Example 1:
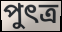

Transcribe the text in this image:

পুৎত্র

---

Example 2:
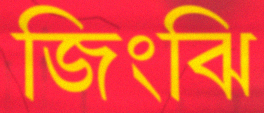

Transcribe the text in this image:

জিংঝি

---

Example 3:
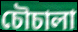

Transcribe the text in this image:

চৌচালা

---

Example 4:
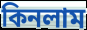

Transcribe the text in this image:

কিনলাম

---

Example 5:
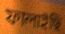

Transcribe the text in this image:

ফালাইছি